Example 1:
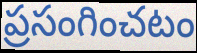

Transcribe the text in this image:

ప్రసంగించటం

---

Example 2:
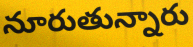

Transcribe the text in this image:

నూరుతున్నారు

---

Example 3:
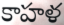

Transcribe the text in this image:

కాహళ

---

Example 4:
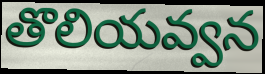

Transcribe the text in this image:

తొలియవ్వన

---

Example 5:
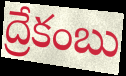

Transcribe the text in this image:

ద్రేకంబు